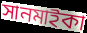
সানমাইকা